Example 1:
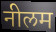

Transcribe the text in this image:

नीलम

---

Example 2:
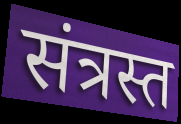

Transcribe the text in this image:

संत्रस्त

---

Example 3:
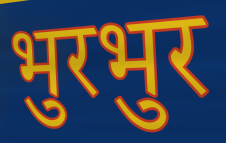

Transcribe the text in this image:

भुरभुर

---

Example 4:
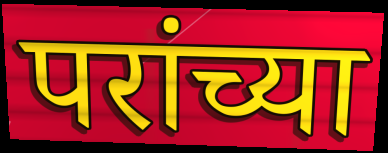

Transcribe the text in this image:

परांच्या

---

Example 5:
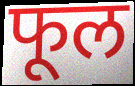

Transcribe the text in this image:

फूल